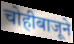
चोहीबाजूने